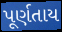
પૂર્ણતાય